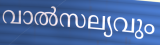
വാൽസല്യവും